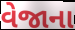
વેજાના